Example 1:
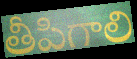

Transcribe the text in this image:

తీపిగాలి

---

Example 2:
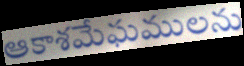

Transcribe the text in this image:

ఆకాశమేఘములను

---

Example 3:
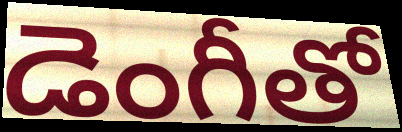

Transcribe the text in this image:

డెంగీతో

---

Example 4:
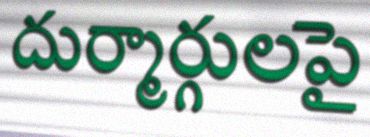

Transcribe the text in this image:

దుర్మార్గులపై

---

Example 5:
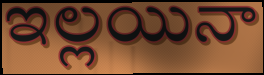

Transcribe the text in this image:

ఇల్లయినా